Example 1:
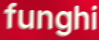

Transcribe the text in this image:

funghi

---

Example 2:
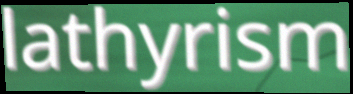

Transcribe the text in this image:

lathyrism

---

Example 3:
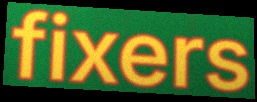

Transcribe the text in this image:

fixers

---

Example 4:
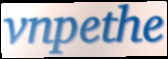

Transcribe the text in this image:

vnpethe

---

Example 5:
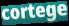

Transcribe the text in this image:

cortege